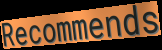
Recommends